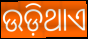
ଉଡ଼ିଥାଏ